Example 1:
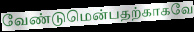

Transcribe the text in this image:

வேண்டுமென்பதற்காகவே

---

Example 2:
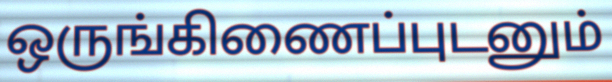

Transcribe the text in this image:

ஒருங்கிணைப்புடனும்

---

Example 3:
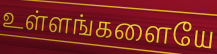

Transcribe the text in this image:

உள்ளங்களையே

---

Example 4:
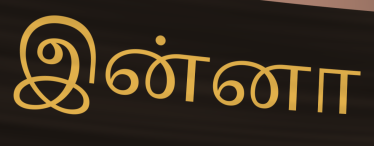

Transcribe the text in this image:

இன்னா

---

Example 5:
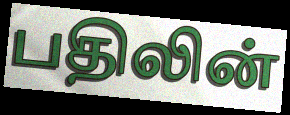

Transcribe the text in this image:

பதிலின்